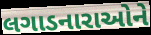
લગાડનારાઓને